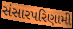
સંસારપરિણામી